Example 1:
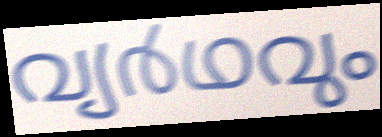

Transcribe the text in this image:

വ്യർഥവും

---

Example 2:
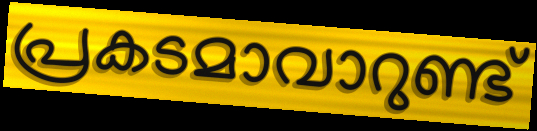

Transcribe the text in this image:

പ്രകടമാവാറുണ്ട്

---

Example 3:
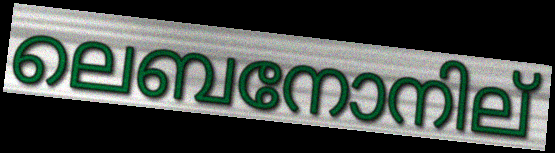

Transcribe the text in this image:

ലെബനോനില്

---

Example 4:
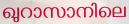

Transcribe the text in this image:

ഖുറാസാനിലെ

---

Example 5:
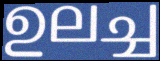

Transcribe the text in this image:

ഉലച്ച